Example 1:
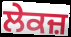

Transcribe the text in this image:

ਲੇਕਜ਼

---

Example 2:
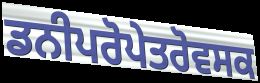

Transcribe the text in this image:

ਡਨੀਪਰੋਪੇਤਰੋਵਸਕ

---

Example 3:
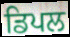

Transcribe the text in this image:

ਡਿਪਲ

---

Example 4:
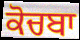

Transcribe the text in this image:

ਕੋਚਬਾ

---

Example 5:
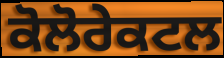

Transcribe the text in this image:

ਕੋਲੋਰੇਕਟਲ